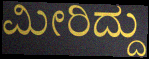
ಮೀರಿದ್ದು